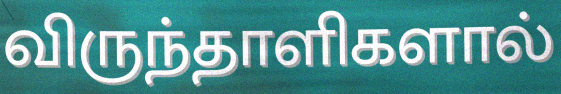
விருந்தாளிகளால்